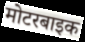
मोटरबाइक